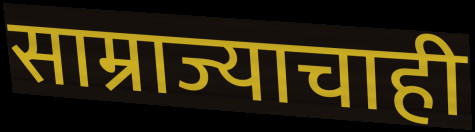
साम्राज्याचाही